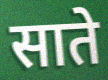
साते